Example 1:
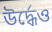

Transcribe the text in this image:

উর্দ্ধেও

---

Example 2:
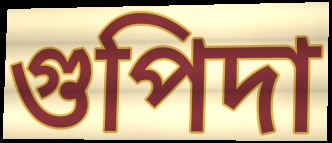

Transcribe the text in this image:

গুপিদা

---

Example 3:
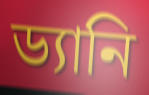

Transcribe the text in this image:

ড্যানি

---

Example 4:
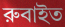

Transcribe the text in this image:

রুবাইত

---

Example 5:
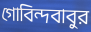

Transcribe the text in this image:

গোবিন্দবাবুর